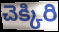
చెక్కిరి